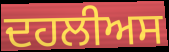
ਦਹਲੀਅਸ